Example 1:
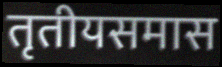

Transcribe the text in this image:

तृतीयसमास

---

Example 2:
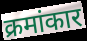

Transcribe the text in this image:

क्रमांकार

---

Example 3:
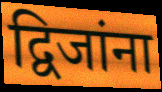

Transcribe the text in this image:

द्विजांना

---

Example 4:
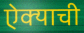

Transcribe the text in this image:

ऐक्याची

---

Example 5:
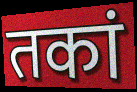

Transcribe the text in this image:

तकां